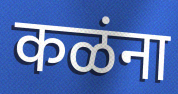
कळंना